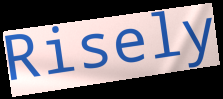
Risely